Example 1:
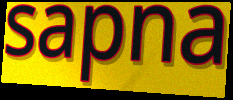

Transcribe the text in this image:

sapna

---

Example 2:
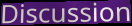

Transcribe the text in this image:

Discussion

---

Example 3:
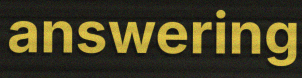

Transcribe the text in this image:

answering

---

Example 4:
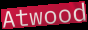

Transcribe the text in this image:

Atwood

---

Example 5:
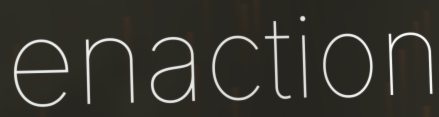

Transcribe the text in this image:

enaction